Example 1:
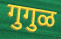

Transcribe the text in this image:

गुगुळ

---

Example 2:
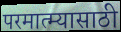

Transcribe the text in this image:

परमात्म्यासाठी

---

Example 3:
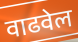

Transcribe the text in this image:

वाढवेल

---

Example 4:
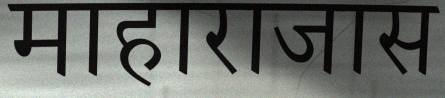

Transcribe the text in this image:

माहाराजास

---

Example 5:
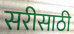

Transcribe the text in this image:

सरीसाठी